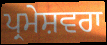
ਪ੍ਰਮੇਸ਼ਵਰਾ